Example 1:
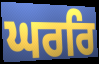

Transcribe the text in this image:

ਘਰਰਿ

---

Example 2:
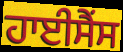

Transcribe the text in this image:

ਹਾਈਸੈਂਸ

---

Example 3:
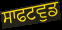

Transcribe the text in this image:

ਸਾਫਟਵੁਡ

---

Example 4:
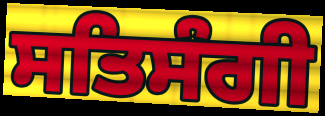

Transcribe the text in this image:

ਸਤਿਸੰਗੀ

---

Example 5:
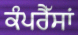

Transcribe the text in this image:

ਕੰਪਰੈੱਸਾਂ